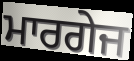
ਮਾਰਗੇਜ